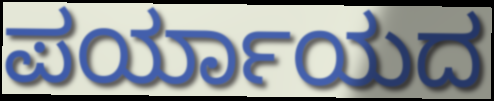
ಪರ್ಯಾಯದ